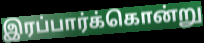
இரப்பார்க்கொன்று